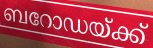
ബറോഡയ്ക്ക്